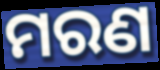
ମରଣ